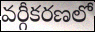
వర్గీకరణలో